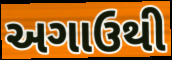
અગાઉથી